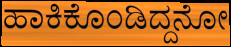
ಹಾಕಿಕೊಂಡಿದ್ದನೋ